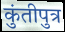
कुंतीपुत्र